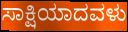
ಸಾಕ್ಷಿಯಾದವಳು